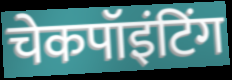
चेकपॉइंटिंग